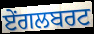
ਏਂਗਲਬਰਟ